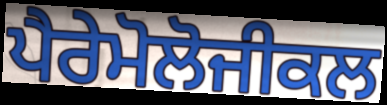
ਪੈਰੇਮੋਲੋਜੀਕਲ